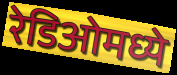
रेडिओमध्ये